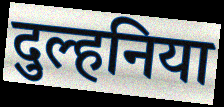
दुल्हनिया